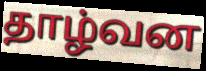
தாழ்வன